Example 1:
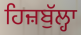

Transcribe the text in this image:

ਹਿਜ਼ਬੁੱਲ੍ਹਾ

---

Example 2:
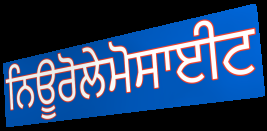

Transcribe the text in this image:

ਨਿਊਰੋਲੇਮੋਸਾਈਟ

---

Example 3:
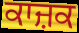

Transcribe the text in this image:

ਕਾਜ਼ਕ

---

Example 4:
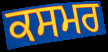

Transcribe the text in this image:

ਕਸਮਰ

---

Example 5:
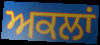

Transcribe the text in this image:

ਅਕਲਾਂ